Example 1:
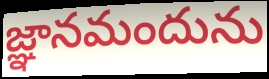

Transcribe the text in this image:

జ్ఞానమందును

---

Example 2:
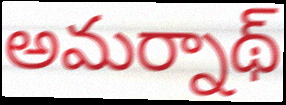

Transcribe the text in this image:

అమర్నాథ్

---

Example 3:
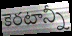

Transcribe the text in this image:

కెరటాన్నీ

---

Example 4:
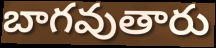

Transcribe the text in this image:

బాగవుతారు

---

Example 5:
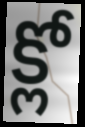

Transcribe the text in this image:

క్లో